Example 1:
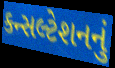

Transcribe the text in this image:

કન્સલ્ટેશનનું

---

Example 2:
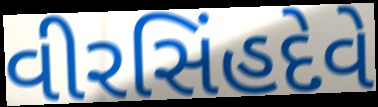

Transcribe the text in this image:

વીરસિંહદેવે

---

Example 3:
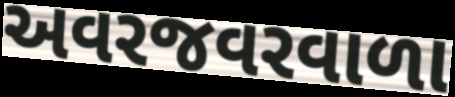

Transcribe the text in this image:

અવરજવરવાળા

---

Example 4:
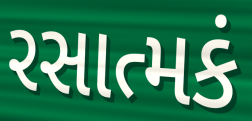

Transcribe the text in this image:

રસાત્મકં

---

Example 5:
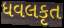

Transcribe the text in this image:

ધવલકૃત